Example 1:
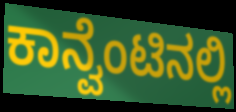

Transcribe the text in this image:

ಕಾನ್ವೆಂಟಿನಲ್ಲಿ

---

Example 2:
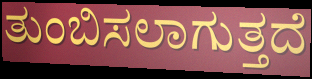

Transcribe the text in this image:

ತುಂಬಿಸಲಾಗುತ್ತದೆ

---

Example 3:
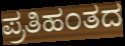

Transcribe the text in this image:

ಪ್ರತಿಹಂತದ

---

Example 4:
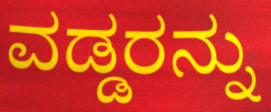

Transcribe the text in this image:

ವಡ್ಡರನ್ನು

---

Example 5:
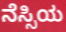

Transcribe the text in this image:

ನೆಸ್ಸಿಯ